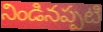
నిండినప్పటి